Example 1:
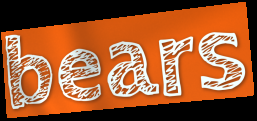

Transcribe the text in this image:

bears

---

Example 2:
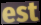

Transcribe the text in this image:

est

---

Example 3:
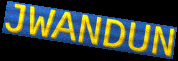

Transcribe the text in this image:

JWANDUN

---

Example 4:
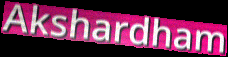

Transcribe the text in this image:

Akshardham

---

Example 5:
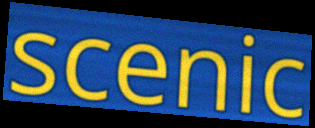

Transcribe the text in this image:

scenic